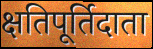
क्षतिपूर्तिदाता